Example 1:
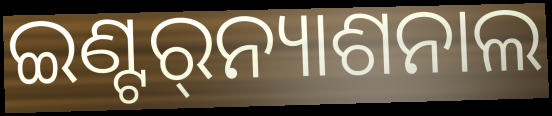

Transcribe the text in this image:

ଇଣ୍ଟର୍‌ନ୍ୟାଶନାଲ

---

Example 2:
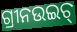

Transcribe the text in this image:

ଗ୍ରୀନଉଇଚ୍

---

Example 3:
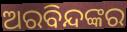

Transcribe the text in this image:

ଅରବିନ୍ଦଙ୍କର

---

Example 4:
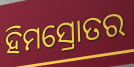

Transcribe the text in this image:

ହିମସ୍ରୋତର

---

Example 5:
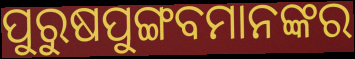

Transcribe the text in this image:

ପୁରୁଷପୁଙ୍ଗବମାନଙ୍କର